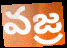
వజ్ర